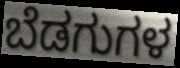
ಬೆಡಗುಗಳ